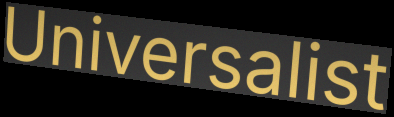
Universalist